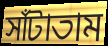
সাঁটাতাম